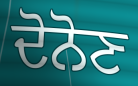
ਦੋਨੋਣ